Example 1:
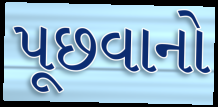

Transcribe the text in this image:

પૂછવાનો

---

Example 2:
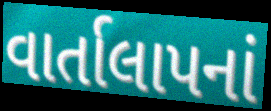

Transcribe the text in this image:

વાર્તાલાપનાં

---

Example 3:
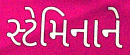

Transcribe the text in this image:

સ્ટેમિનાને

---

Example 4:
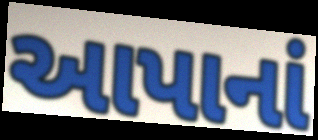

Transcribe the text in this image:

આપાનાં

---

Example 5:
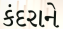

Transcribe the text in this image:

કંદરાને